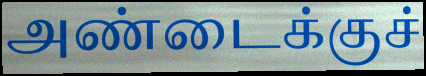
அண்டைக்குச்